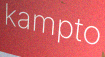
kampto